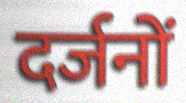
दर्जनों